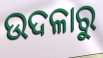
ଉଦଳାରୁ